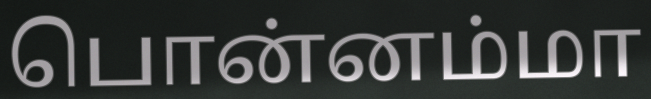
பொன்னம்மா